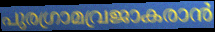
പുരഗ്രാമവ്രജാകരാൻ